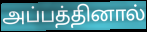
அப்பத்தினால்